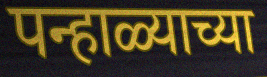
पन्हाळ्याच्या